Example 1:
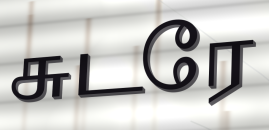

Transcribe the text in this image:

சுடரே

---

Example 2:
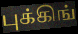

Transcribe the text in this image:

புக்கிங்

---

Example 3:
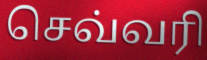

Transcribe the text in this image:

செவ்வரி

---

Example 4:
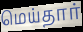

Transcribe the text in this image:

மெய்தார்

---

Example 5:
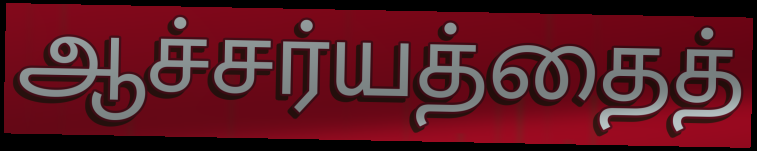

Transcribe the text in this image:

ஆச்சர்யத்தைத்